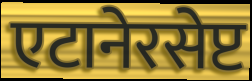
एटानेरसेप्ट